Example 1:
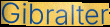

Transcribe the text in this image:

Gibralter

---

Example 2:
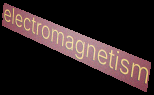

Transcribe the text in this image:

electromagnetism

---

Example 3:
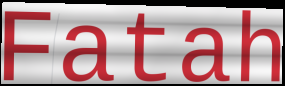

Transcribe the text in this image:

Fatah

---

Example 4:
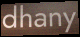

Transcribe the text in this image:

dhany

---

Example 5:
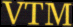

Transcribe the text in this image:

VTM